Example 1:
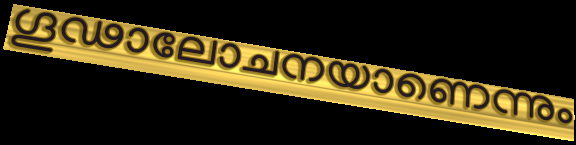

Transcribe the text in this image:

ഗൂഢാലോചനയാണെന്നും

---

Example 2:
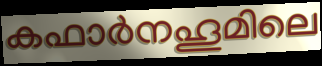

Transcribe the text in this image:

കഫാർനഹൂമിലെ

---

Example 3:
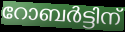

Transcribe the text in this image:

റോബർട്ടിന്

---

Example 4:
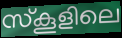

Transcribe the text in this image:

സ്കൂളിലെ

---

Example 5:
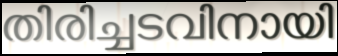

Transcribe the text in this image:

തിരിച്ചടവിനായി